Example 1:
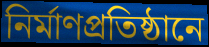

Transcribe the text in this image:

নির্মাণপ্রতিষ্ঠানে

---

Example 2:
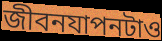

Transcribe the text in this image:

জীবনযাপনটাও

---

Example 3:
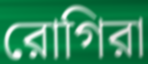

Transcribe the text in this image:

রোগিরা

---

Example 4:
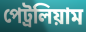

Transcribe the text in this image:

পেট্রলিয়াম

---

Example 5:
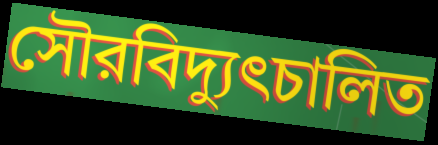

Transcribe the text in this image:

সৌরবিদ্যুৎচালিত